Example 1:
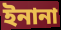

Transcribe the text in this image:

ইনানা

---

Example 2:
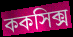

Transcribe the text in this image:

ককসিক্স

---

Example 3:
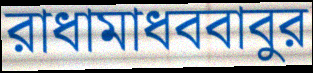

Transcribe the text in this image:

রাধামাধববাবুর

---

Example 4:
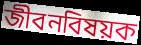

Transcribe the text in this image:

জীবনবিষয়ক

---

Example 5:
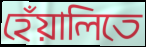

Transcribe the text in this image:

হেঁয়ালিতে